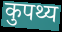
कुपथ्य